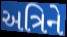
અત્રિને